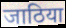
जाठिया